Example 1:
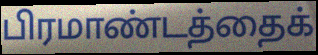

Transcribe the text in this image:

பிரமாண்டத்தைக்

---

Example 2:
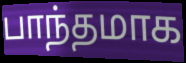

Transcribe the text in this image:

பாந்தமாக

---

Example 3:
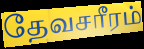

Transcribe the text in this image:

தேவசரீரம்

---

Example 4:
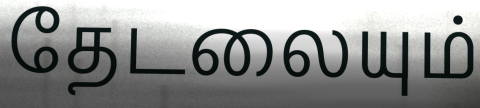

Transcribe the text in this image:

தேடலையும்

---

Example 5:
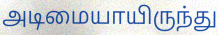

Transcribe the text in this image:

அடிமையாயிருந்து